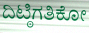
ದಿಟ್ಠಿಗತಿಕೋ